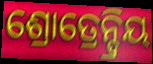
ଶ୍ରୋତ୍ରେନ୍ଦ୍ରିୟ